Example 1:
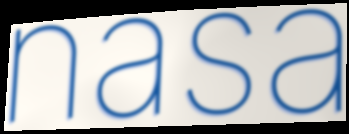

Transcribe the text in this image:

nasa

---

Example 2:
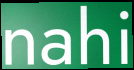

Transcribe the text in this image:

nahi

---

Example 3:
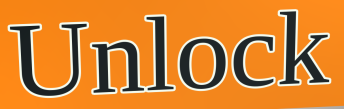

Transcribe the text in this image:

Unlock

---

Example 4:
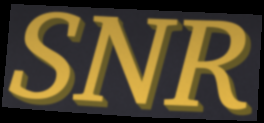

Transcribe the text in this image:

SNR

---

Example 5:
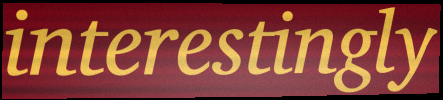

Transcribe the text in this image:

interestingly